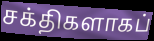
சக்திகளாகப்